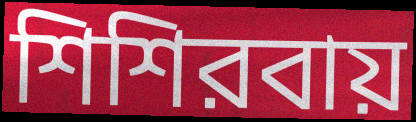
শিশিরবায়